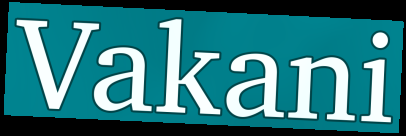
Vakani